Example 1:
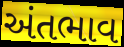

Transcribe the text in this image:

અંતભાવ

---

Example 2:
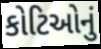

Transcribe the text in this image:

કોટિઓનું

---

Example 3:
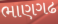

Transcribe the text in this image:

ભાણગઢ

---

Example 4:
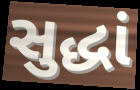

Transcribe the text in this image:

સુદ્ધાં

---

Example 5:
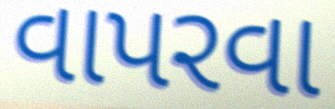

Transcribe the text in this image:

વાપરવા